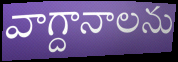
వాగ్దానాలను